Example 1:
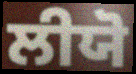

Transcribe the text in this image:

ਲੀਯੋ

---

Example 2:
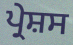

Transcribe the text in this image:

ਪ੍ਰੇਸ਼ਸ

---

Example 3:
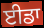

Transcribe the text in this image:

ਈਡਾ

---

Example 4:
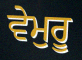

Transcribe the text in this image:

ਵੇਮੁਰੂ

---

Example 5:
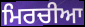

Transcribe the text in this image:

ਮਿਰਚੀਆ